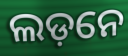
ଲଡ଼ନେ